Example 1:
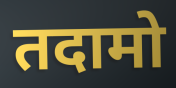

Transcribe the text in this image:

तदामो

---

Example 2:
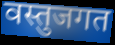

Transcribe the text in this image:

वस्तुजगत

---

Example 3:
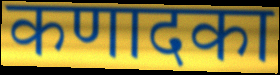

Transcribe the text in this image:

कणादका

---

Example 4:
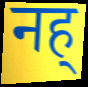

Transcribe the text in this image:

नह्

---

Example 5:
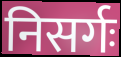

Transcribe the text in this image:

निसर्गः